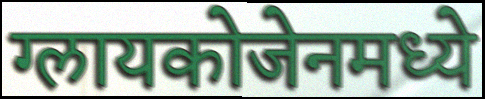
ग्लायकोजेनमध्ये